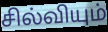
சில்வியும்